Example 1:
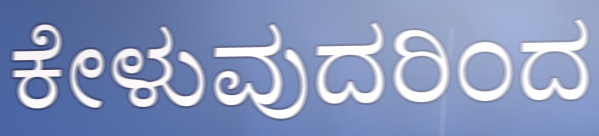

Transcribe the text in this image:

ಕೇಳುವುದರಿಂದ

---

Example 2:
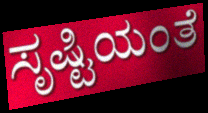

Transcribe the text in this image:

ಸೃಷ್ಟಿಯಂತೆ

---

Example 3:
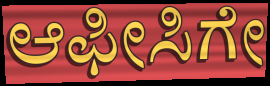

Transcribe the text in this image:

ಆಫೀಸಿಗೇ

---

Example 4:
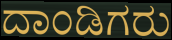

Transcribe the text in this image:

ದಾಂಡಿಗರು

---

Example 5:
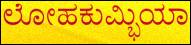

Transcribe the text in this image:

ಲೋಹಕುಮ್ಭಿಯಾ